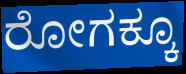
ರೋಗಕ್ಕೂ